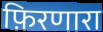
फ़िरणारा